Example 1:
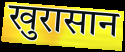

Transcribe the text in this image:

खुरासान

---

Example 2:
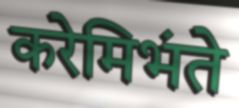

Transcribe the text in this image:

करेमिभंते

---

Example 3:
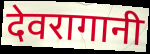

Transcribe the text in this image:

देवरागानी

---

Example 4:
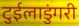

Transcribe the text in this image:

टुईलाडुंगरी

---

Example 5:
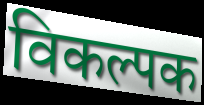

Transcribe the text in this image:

विकल्पक